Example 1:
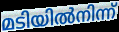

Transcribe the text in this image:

മടിയിൽനിന്ന്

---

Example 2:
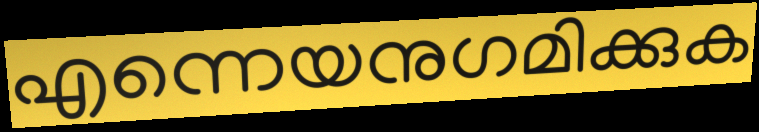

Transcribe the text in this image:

എന്നെയനുഗമിക്കുക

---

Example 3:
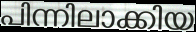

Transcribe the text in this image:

പിന്നിലാക്കിയ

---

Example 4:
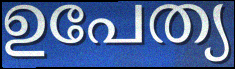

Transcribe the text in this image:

ഉപേത്യ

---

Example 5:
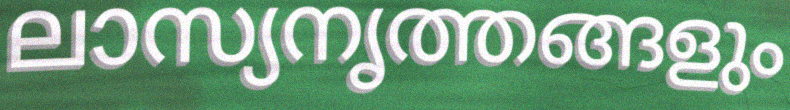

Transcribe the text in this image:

ലാസ്യനൃത്തങ്ങളും